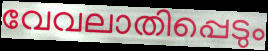
വേവലാതിപ്പെടും